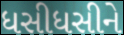
ધસીધસીને